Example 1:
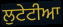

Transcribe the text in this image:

ਲੁਟੇਟੀਆ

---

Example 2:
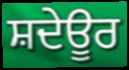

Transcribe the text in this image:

ਸ਼ਦੇਊਰ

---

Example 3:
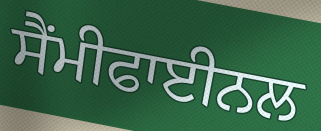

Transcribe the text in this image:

ਸੈਂਮੀਫਾਈਨਲ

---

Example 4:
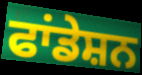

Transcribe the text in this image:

ਫਾਂਡੇਸ਼ਨ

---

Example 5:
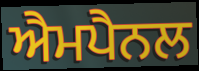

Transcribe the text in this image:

ਐਮਪੈਨਲ